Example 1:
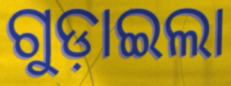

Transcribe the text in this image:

ଗୁଡ଼ାଇଲା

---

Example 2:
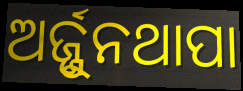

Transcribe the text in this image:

ଅର୍ଜ୍ଜୁନଥାପା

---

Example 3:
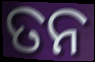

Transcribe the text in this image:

ତନ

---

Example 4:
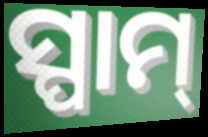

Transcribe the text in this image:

ସ୍ପାମ୍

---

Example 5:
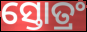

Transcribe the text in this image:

ସ୍ତୋତ୍ରଂ